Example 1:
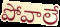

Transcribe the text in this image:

పోవాలే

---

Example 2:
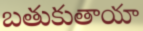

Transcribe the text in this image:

బతుకుతాయా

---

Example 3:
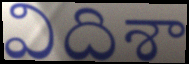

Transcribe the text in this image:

విదిశా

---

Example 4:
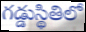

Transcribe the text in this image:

గడ్డుస్థితిలో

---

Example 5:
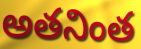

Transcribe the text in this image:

అతనింత